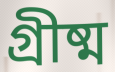
গ্ৰীষ্ম